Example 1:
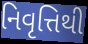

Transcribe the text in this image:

નિવૃત્તિથી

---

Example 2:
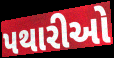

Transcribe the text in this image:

પથારીઓ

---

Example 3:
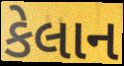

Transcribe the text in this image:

કેલાન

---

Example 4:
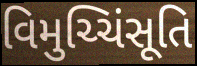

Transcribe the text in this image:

વિમુચ્ચિંસૂતિ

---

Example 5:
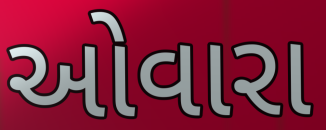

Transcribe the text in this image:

ઓવારા